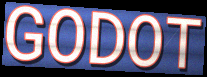
GODOT